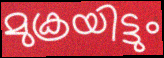
മുക്രയിട്ടും